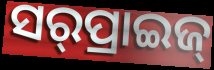
ସର୍‌ପ୍ରାଇଜ୍